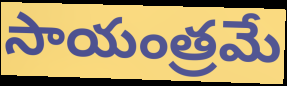
సాయంత్రమే